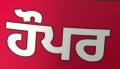
ਹੌਪਰ